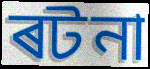
ৰটনা